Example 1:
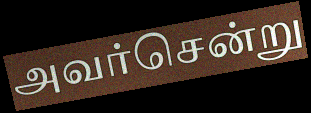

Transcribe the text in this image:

அவர்சென்று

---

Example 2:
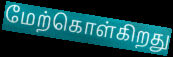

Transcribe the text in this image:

மேற்கொள்கிறது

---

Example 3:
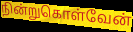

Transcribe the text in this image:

நின்றுகொள்வேன்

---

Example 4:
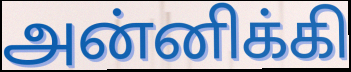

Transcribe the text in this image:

அன்னிக்கி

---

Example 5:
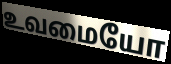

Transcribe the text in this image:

உவமையோ